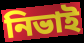
নিভাই